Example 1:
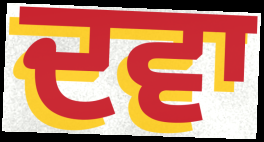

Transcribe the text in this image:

ਦਵਾ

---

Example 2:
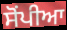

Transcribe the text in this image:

ਸੋਂਪੀਆ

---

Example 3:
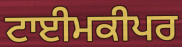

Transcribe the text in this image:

ਟਾਈਮਕੀਪਰ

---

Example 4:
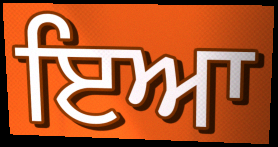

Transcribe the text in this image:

ਇਆ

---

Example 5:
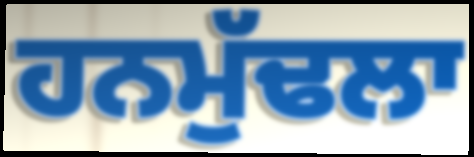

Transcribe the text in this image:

ਹਨਮੁੱਢਲਾ